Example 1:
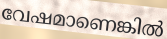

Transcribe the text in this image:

വേഷമാണെങ്കിൽ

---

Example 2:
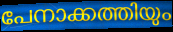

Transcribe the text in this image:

പേനാക്കത്തിയും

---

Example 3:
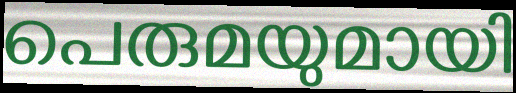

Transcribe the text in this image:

പെരുമയുമായി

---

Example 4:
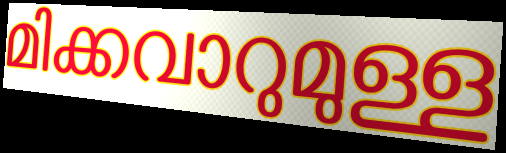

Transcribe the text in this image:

മിക്കവാറുമുള്ള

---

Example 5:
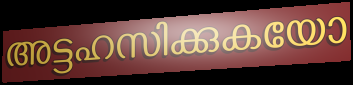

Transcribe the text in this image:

അട്ടഹസിക്കുകയോ